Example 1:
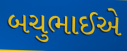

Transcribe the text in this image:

બચુભાઈએ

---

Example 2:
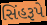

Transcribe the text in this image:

સિંહરૂપે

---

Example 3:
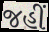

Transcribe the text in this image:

જહીં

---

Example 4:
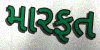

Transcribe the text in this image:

મારફત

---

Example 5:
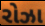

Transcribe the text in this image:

રોઝા